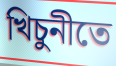
খিচুনীতে